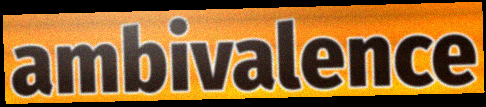
ambivalence